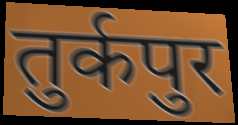
तुर्कपुर